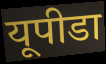
यूपीडा